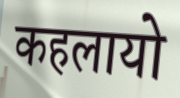
कहलायो